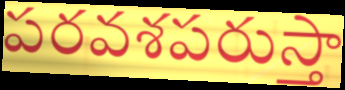
పరవశపరుస్తా